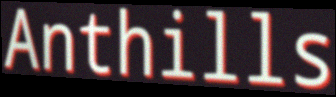
Anthills